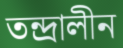
তন্দ্রালীন